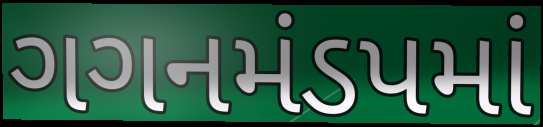
ગગનમંડપમાં